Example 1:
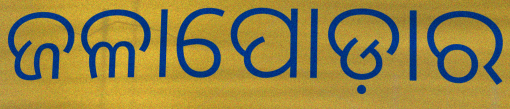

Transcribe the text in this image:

ଜଳାପୋଡ଼ାର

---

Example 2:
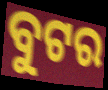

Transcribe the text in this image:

ବୁଟର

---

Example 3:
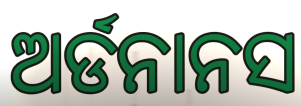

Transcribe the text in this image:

ଅର୍ଡନାନସ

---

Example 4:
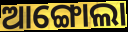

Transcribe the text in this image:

ଆଙ୍ଗୋଲା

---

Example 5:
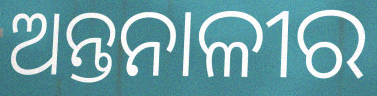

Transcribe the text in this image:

ଅନ୍ତନାଳୀର